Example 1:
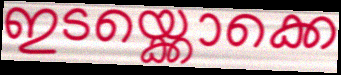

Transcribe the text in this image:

ഇടയ്ക്കൊക്കെ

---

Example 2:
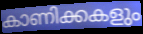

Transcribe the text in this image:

കാണിക്കകളും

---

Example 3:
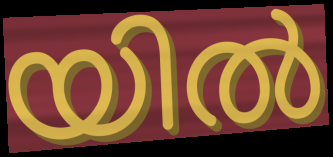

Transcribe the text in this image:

യിൽ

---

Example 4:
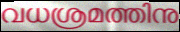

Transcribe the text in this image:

വധശ്രമത്തിനു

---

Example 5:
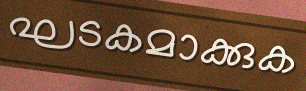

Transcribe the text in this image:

ഘടകമാക്കുക